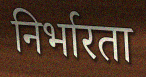
निर्भारता